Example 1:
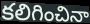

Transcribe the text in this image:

కలిగించినా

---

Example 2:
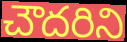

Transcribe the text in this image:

చౌదరిని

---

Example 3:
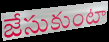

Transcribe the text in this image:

జేసుకుంటా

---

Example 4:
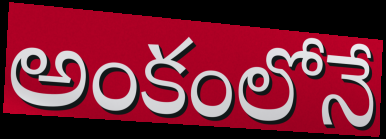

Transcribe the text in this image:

అంకంలోనే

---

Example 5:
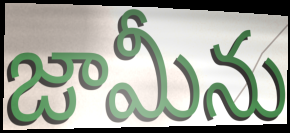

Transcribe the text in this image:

జామీను